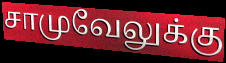
சாமுவேலுக்கு